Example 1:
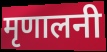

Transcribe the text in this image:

मृणालनी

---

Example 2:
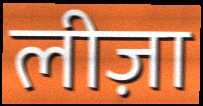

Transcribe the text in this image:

लीज़ा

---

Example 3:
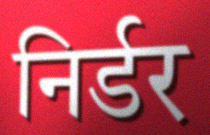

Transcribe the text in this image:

निर्डर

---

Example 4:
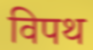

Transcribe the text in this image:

विपथ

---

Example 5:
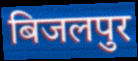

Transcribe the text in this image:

बिजलपुर